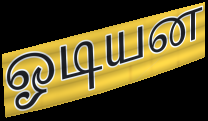
ஓடியன